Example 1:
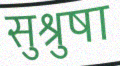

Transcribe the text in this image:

सुश्रुषा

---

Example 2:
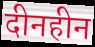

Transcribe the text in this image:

दीनहीन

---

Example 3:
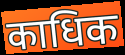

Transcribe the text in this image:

काधिक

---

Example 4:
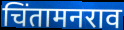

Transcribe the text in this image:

चिंतामनराव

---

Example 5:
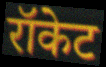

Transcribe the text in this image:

रॉकेट